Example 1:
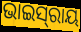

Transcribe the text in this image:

ଭାଇସ୍‍ରାୟ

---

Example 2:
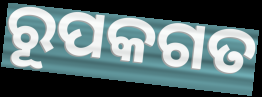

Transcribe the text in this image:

ରୂପକଗତ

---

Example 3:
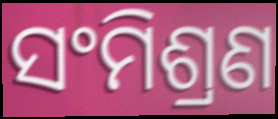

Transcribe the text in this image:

ସଂମିଶ୍ରଣ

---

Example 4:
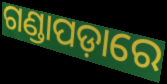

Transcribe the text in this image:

ଗଣ୍ଡାପଡ଼ାରେ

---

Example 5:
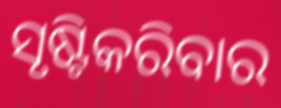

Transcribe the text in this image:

ସୃଷ୍ଟିକରିବାର